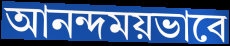
আনন্দময়ভাবে